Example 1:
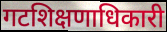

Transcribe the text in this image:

गटशिक्षणाधिकारी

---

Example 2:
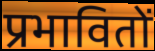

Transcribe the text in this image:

प्रभावितों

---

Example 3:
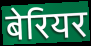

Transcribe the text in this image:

बेरियर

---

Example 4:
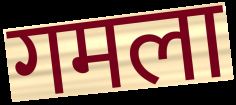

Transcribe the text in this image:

गमला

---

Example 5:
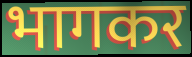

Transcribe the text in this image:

भागकर